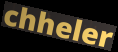
chheler